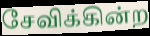
சேவிக்கின்ற